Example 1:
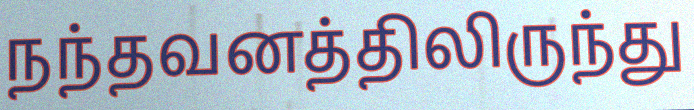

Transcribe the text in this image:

நந்தவனத்திலிருந்து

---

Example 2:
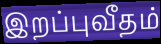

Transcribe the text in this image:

இறப்புவீதம்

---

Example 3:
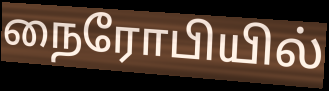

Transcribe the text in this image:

நைரோபியில்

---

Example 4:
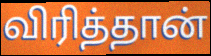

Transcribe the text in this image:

விரித்தான்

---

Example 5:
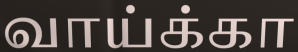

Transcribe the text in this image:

வாய்க்கா